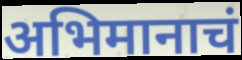
अभिमानाचं